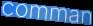
comman